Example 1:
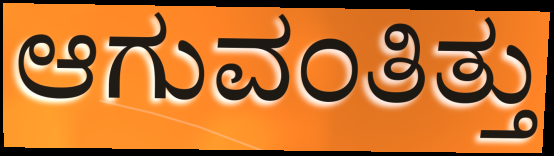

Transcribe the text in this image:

ಆಗುವಂತಿತ್ತು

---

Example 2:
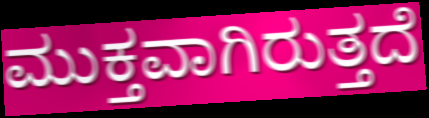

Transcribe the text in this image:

ಮುಕ್ತವಾಗಿರುತ್ತದೆ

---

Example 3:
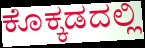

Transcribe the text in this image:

ಕೊಕ್ಕಡದಲ್ಲಿ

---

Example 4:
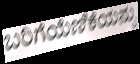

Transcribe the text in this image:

ಬರಿಗೆಯೆಣಿಕೆಯನ್ನು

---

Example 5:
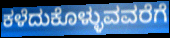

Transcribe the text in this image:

ಕಳೆದುಕೊಳ್ಳುವವರೆಗೆ